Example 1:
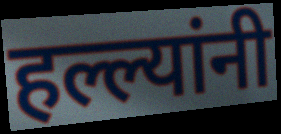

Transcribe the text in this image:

हल्ल्यांनी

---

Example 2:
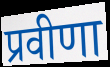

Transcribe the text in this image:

प्रवीणा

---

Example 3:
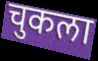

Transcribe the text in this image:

चुकला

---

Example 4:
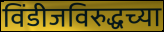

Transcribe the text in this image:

विंडीजविरुद्धच्या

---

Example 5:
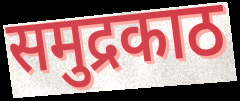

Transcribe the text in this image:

समुद्रकाठ